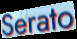
Serato